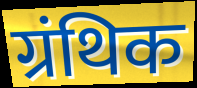
ग्रंथिक